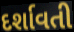
દર્શાવતી